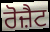
ਰੋਜ਼ੈਟ